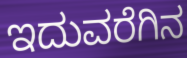
ಇದುವರೆಗಿನ